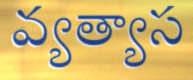
వ్యత్యాస